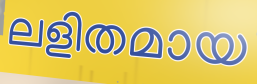
ലളിതമായ